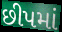
છીપમાં